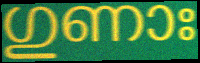
ഗുണാഃ